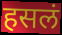
हसलं